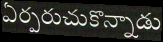
ఏర్పరుచుకొన్నాడు